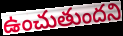
ఉంచుతుందని